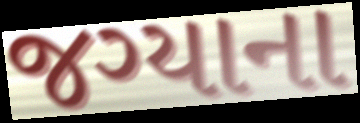
જગ્યાના